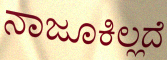
ನಾಜೂಕಿಲ್ಲದೆ